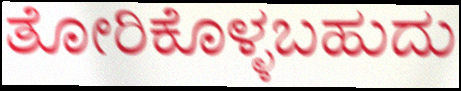
ತೋರಿಕೊಳ್ಳಬಹುದು